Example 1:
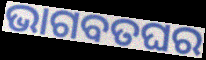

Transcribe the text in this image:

ଭାଗବତଘର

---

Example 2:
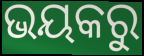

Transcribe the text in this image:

ଭୟକରୁ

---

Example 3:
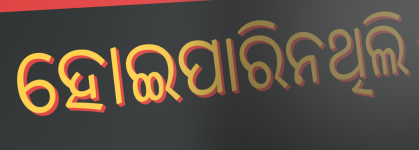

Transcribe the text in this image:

ହୋଇପାରିନଥିଲି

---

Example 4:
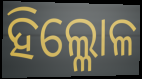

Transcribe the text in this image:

ହିଲ୍ଳୋଳ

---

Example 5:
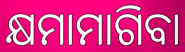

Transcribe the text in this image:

କ୍ଷମାମାଗିବା